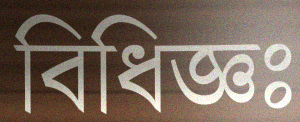
বিধিজ্ঞঃ